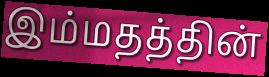
இம்மதத்தின்